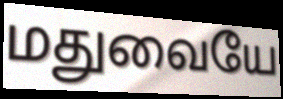
மதுவையே